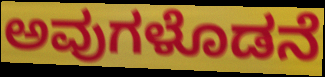
ಅವುಗಳೊಡನೆ